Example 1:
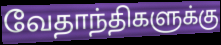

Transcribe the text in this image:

வேதாந்திகளுக்கு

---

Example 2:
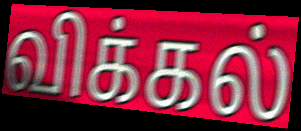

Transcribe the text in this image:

விக்கல்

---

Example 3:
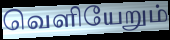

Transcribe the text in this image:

வெளியேறும்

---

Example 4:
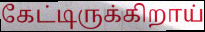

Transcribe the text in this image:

கேட்டிருக்கிறாய்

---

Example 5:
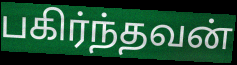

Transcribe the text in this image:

பகிர்ந்தவன்